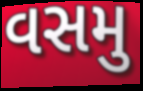
વસમુ